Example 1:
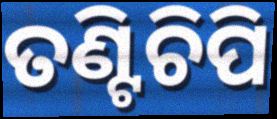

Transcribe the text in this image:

ତଣ୍ଟିଚିପି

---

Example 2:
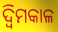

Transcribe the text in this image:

ଦ୍ବିମକାଳ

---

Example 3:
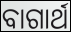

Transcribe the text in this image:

ବାଗାର୍ଥ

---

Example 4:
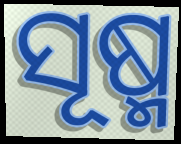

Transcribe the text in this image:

ସୂଷ୍ମ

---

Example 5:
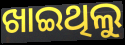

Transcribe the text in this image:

ଖାଇଥିଲୁ